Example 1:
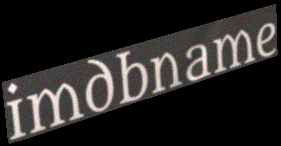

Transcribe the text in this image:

imdbname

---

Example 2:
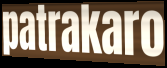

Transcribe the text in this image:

patrakaro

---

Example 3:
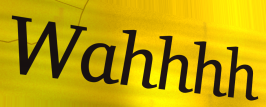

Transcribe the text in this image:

Wahhhh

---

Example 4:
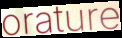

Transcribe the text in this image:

orature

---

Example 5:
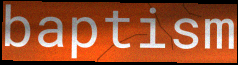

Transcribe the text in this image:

baptism